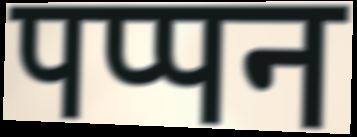
पप्पन